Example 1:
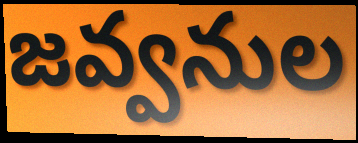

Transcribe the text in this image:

జవ్వనుల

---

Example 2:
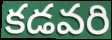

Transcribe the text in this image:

కడవరి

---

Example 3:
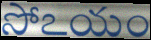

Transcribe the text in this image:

సోఽయం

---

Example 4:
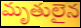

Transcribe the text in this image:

మృతులైన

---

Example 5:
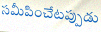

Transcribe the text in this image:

సమీపించేటప్పుడు